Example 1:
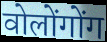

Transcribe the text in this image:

वोलोंगोंग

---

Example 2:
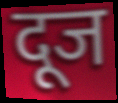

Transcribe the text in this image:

दूज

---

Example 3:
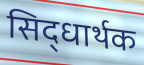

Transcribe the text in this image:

सिद्धार्थक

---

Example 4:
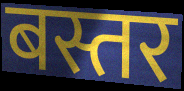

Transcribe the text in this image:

बस्तर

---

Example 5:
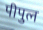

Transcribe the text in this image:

पीपुल